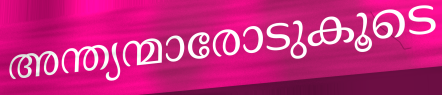
അന്ത്യന്മാരോടുകൂടെ